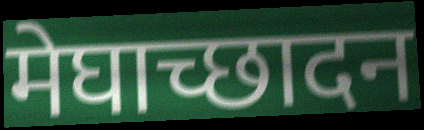
मेघाच्छादन